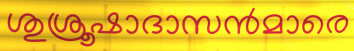
ശുശ്രൂഷാദാസൻമാരെ